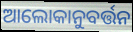
ଆଲୋକାନୁବର୍ତ୍ତନ